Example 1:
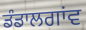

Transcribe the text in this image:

ਡੰਡਾਲਗਾਂਵ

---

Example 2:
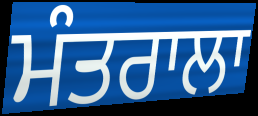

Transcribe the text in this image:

ਮੰਤਰਾਲਾ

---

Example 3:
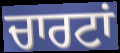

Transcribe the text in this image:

ਚਾਰਟਾਂ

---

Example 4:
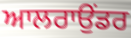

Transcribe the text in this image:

ਆਲਰਾਉਂਡਰ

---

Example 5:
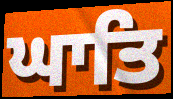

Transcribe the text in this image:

ਘਾਤਿ